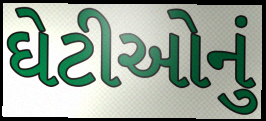
ઘેટીઓનું